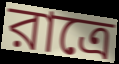
রাত্রে